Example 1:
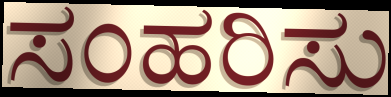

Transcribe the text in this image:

ಸಂಹರಿಸು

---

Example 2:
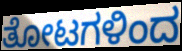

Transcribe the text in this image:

ತೋಟಗಳಿಂದ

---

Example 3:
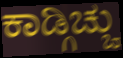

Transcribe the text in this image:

ಕಾಡ್ಗಿಚ್ಚು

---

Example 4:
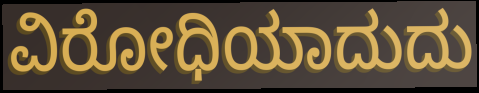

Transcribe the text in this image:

ವಿರೋಧಿಯಾದುದು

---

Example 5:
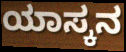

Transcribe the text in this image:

ಯಾಸ್ಕನ